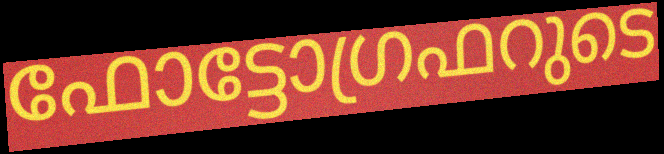
ഫോട്ടോഗ്രഫറുടെ